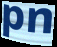
pn